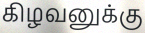
கிழவனுக்கு